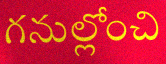
గనుల్లోంచి